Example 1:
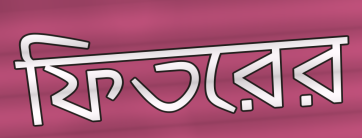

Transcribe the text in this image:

ফিতরের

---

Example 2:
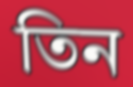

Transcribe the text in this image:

তিন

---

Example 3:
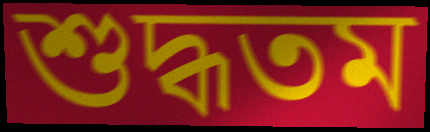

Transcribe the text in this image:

শুদ্ধতম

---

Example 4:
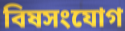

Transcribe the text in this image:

বিষসংযোগ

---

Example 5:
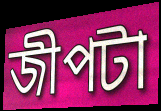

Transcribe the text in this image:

জীপটা